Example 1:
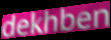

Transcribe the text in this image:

dekhben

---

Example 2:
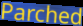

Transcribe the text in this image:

Parched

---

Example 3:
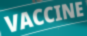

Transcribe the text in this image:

VACCINE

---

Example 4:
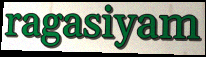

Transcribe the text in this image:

ragasiyam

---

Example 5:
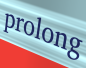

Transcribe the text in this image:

prolong